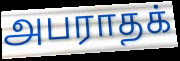
அபராதக்